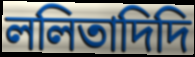
ললিতাদিদি